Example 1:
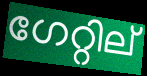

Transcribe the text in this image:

ഗേറ്റില്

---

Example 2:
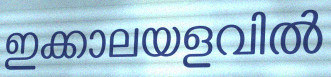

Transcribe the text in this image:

ഇക്കാലയളവിൽ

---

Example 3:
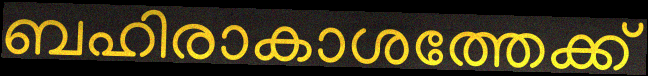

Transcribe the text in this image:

ബഹിരാകാശത്തേക്ക്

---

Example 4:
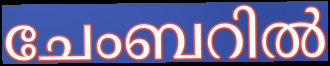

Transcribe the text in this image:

ചേംബറിൽ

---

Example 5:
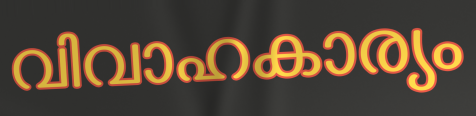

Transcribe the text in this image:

വിവാഹകാര്യം